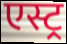
एस्ट्र